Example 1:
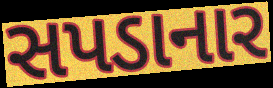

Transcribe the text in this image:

સપડાનાર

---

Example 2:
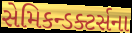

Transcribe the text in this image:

સેમિકન્ડક્ટર્સના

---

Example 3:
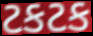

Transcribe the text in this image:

ટકટક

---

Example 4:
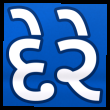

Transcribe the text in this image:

દેરે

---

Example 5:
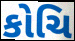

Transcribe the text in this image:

કોચિ